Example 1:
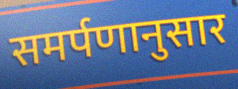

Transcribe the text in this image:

समर्पणानुसार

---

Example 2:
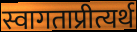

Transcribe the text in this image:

स्वागताप्रीत्यर्थ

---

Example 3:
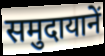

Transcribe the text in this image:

समुदायानें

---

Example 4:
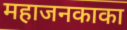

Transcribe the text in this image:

महाजनकाका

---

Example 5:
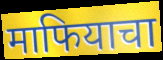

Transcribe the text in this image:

माफियाचा